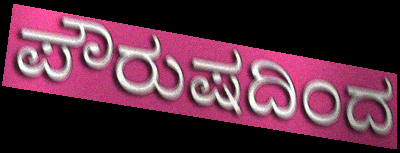
ಪೌರುಷದಿಂದ